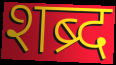
शब्र्द